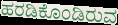
ಹರಡಿಕೊಂಡಿರುವ